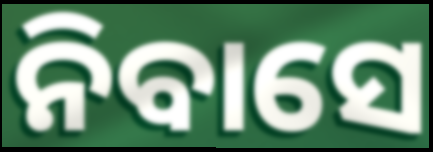
ନିବାସେ